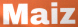
Maiz